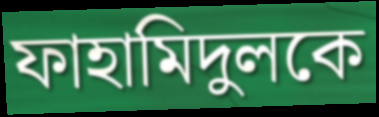
ফাহামিদুলকে